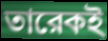
তারেকই